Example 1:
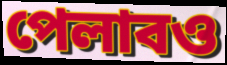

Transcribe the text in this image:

পেলাবও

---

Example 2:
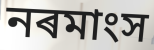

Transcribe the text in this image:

নৰমাংস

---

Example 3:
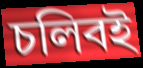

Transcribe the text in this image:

চলিবই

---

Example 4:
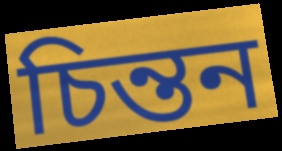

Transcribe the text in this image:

চিন্তন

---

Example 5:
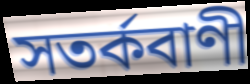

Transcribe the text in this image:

সতৰ্কবাণী